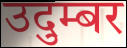
उदुम्बर